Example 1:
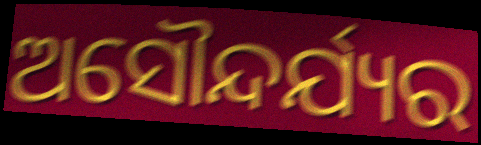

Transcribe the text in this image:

ଅସୌନ୍ଦର୍ଯ୍ୟର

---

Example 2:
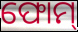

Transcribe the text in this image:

ଫୋମ୍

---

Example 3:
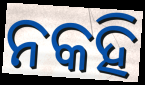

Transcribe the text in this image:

ନକହି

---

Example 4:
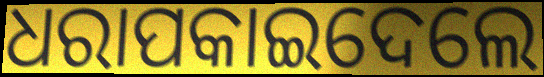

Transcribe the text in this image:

ଧରାପକାଇଦେଲେ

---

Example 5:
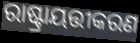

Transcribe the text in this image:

ରାଷ୍ଟ୍ରାୟତ୍ତୀକରଣ